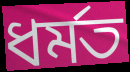
ধৰ্মত